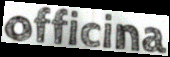
officina